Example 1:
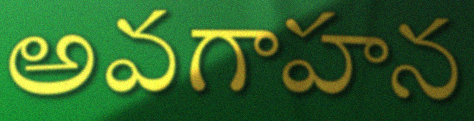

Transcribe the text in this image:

అవగాహన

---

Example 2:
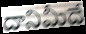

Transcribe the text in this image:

దానిమీదే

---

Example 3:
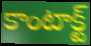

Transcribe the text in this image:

కాంటాక్ట్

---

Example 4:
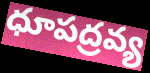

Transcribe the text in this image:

ధూపద్రవ్య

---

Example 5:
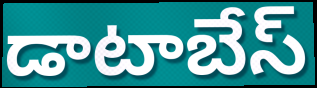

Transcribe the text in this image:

డాటాబేస్